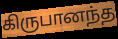
கிருபானந்த